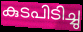
കുടപിടിച്ചു